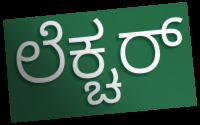
ಲೆಕ್ಚರ್